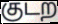
குடற